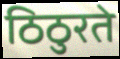
ठिठुरते